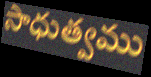
సాధుత్వము